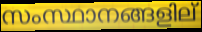
സംസ്ഥാനങ്ങളില്